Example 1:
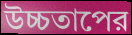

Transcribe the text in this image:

উচ্চতাপের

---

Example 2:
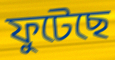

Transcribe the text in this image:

ফুটেছে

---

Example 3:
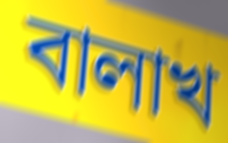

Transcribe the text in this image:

বালাখ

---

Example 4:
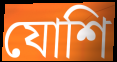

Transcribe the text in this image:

যোশি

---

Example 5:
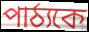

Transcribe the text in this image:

পাঠ্যকে